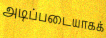
அடிப்படையாகக்